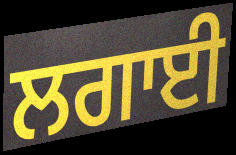
ਲਗਾਈ